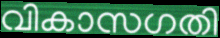
വികാസഗതി